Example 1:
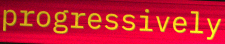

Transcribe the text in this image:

progressively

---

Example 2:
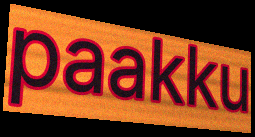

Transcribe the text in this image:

paakku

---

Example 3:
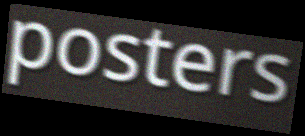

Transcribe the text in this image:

posters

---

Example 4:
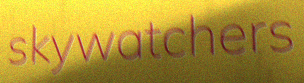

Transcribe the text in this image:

skywatchers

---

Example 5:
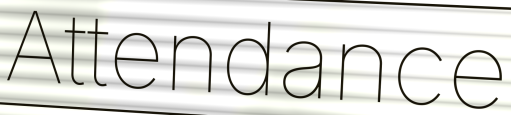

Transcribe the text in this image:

Attendance